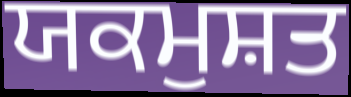
ਯਕਮੁਸ਼ਤ